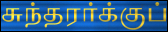
சுந்தரர்க்குப்